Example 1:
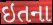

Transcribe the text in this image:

ઇતના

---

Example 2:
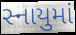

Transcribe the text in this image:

સ્નાયુમાં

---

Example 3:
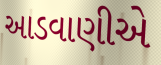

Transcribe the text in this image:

આડવાણીએ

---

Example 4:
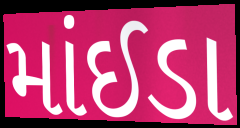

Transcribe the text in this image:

માંઈડા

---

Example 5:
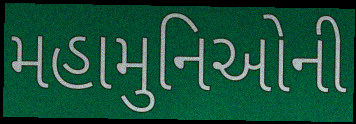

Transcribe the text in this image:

મહામુનિઓની